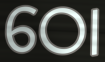
ଠୋ